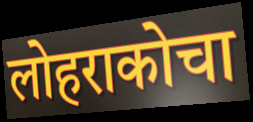
लोहराकोचा